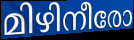
മിഴിനീരോ